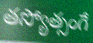
తస్యోత్సంగే